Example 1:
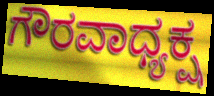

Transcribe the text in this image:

ಗೌರವಾಧ್ಯಕ್ಷ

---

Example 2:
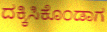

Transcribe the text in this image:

ದಕ್ಕಿಸಿಕೊಂಡಾಗ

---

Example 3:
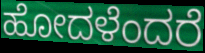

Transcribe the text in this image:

ಹೋದಳೆಂದರೆ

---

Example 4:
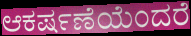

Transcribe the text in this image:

ಆಕರ್ಷಣೆಯೆಂದರೆ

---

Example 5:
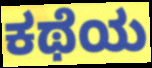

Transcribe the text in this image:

ಕಥೆಯ